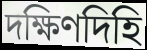
দক্ষিণদিহি